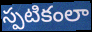
స్పటికంలా